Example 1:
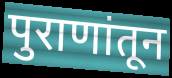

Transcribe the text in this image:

पुराणांतून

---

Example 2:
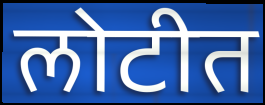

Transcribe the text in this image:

लोटीत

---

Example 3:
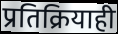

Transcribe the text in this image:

प्रतिक्रियाही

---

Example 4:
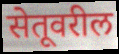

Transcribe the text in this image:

सेतूवरील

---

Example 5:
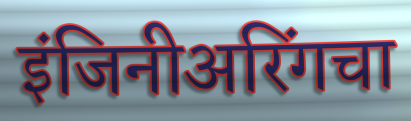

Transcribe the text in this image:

इंजिनीअरिंगचा